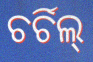
ଚର୍ଚିଲ୍